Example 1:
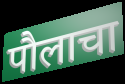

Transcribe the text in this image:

पौलाचा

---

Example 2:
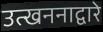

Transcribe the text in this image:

उत्खननाद्वारे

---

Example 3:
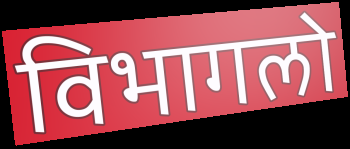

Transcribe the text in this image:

विभागलो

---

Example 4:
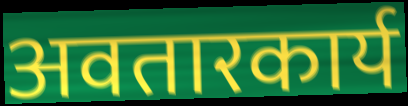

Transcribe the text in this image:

अवतारकार्य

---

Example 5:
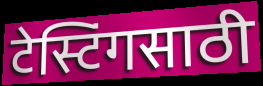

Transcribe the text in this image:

टेस्टिंगसाठी